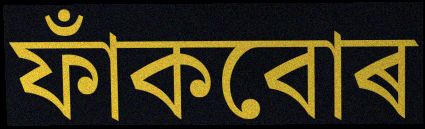
ফাঁকবোৰ